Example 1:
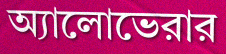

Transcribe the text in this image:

অ্যালোভেরার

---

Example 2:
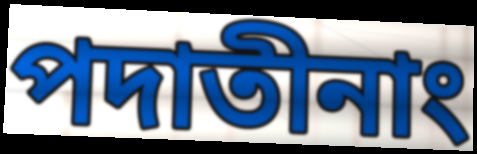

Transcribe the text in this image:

পদাতীনাং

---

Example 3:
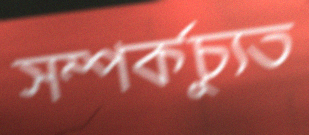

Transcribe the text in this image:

সম্পর্কচ্যুত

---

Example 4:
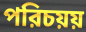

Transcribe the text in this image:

পরিচয়য়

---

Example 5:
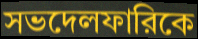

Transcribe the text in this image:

সভদেলফারিকে